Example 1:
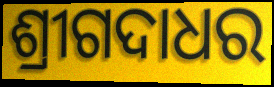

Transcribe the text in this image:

ଶ୍ରୀଗଦାଧର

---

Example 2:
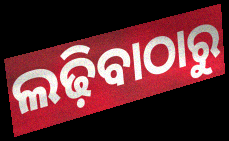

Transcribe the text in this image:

ଲଢ଼ିବାଠାରୁ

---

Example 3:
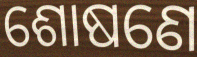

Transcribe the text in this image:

ଶୋଷଣେ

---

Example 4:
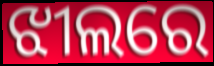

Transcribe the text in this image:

ଝୀଲରେ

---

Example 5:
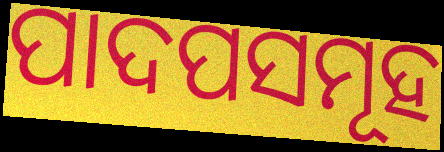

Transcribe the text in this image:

ପାଦପସମୂହ